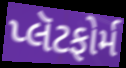
પ્લૅટફોર્મ